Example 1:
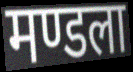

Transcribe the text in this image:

मण्डला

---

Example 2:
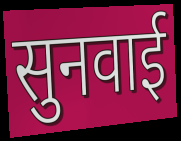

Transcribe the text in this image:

सुनवाई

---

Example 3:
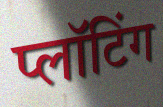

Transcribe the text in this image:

प्लॉटिंग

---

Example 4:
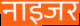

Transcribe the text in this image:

नाइजर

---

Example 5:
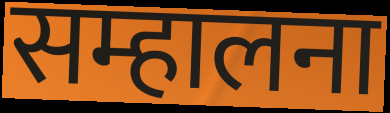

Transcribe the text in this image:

सम्हालना